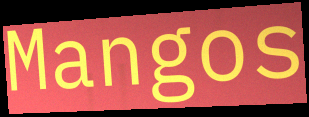
Mangos